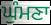
ਘੁੰਮਣਾ